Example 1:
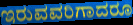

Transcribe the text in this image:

ಇರುವವರಿಗಾದರೂ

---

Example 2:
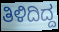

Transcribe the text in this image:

ತಿಳಿದಿದ್ದ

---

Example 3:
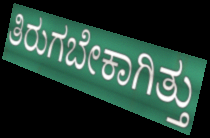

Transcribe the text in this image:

ತಿರುಗಬೇಕಾಗಿತ್ತು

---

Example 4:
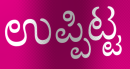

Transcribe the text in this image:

ಉಪ್ಪಿಟ್ಟ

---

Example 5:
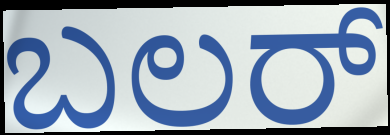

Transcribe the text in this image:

ಬಲರ್